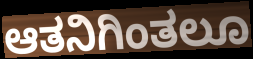
ಆತನಿಗಿಂತಲೂ